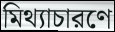
মিথ্যাচারণে